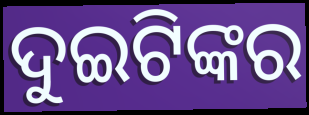
ଦୁଇଟିଙ୍କର